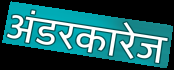
अंडरकारेज